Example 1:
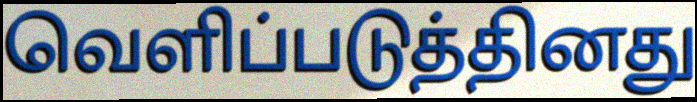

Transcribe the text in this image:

வெளிப்படுத்தினது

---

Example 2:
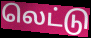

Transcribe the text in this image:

லெட்டு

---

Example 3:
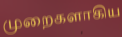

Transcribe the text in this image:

முறைகளாகிய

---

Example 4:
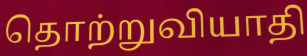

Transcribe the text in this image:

தொற்றுவியாதி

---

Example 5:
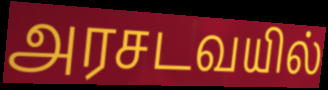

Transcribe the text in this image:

அரசடவயில்